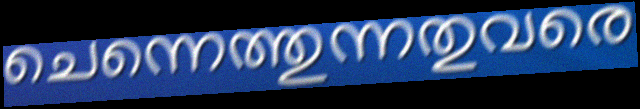
ചെന്നെത്തുന്നതുവരെ